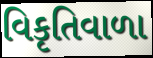
વિકૃતિવાળા